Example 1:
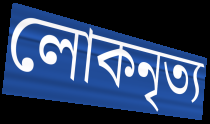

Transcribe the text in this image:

লোকনৃত্য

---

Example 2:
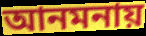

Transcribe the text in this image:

আনমনায়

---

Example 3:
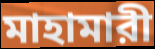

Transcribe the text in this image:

মাহামারী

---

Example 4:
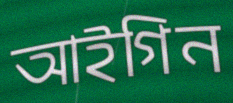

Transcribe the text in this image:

আইগিন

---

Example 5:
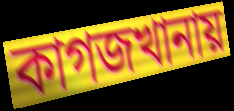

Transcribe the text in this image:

কাগজখানায়